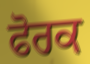
ਫੋਰਕ